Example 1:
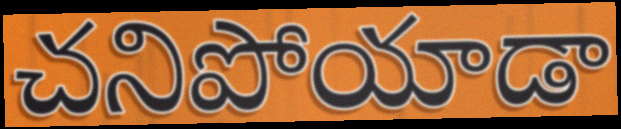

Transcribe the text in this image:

చనిపోయాడా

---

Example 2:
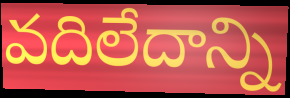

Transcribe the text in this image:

వదిలేదాన్ని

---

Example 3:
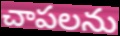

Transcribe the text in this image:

చాపలను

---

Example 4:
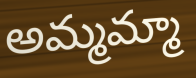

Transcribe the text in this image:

అమ్మమ్మా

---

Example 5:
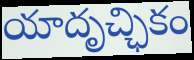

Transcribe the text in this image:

యాదృచ్ఛికం